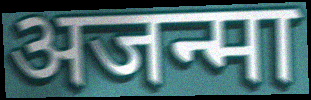
अजन्‍मा